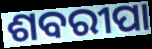
ଶବରୀପା